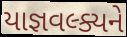
યાજ્ઞવલ્ક્યને